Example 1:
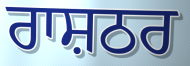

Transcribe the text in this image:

ਰਾਸ਼ਠਰ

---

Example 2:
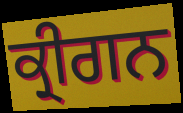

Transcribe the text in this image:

ਕ੍ਰੀਗਨ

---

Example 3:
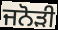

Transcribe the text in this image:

ਜਨੋੜੀ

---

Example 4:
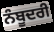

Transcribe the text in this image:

ਨੰਬੂਦਰੀ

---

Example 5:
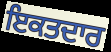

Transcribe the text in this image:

ਇਕਤਦਾਰ